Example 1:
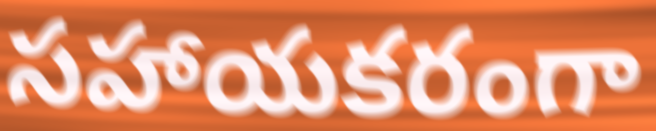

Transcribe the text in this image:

సహాయకరంగా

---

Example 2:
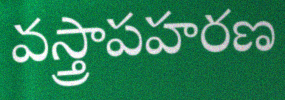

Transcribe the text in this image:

వస్త్రాపహరణ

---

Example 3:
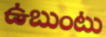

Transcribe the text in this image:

ఉబుంటు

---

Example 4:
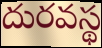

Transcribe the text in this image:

దురవస్థ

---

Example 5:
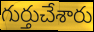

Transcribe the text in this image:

గుర్తుచేశారు